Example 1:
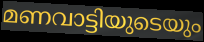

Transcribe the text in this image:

മണവാട്ടിയുടെയും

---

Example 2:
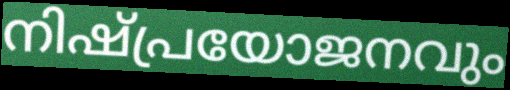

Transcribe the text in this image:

നിഷ്പ്രയോജനവും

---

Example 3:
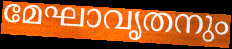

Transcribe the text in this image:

മേഘാവൃതനും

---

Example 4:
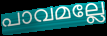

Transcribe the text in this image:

പാവമല്ലേ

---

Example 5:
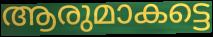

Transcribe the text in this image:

ആരുമാകട്ടെ